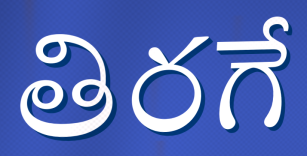
తిరగే